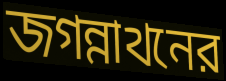
জগন্নাথনের